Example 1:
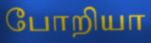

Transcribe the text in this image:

போறியா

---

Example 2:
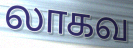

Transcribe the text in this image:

லாகவ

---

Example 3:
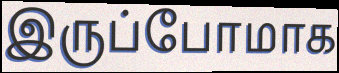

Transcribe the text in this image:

இருப்போமாக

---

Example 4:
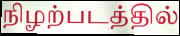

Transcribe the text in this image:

நிழற்படத்தில்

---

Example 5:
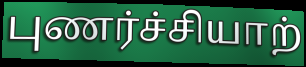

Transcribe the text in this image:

புணர்ச்சியாற்